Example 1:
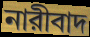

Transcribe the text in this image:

নারীবাদ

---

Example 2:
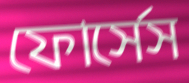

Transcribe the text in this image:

ফোর্সেস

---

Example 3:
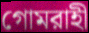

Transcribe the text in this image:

গোমরাহী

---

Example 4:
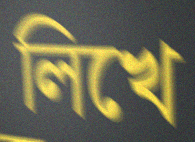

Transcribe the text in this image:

লিখে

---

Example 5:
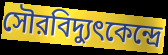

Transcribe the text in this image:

সৌরবিদ্যুৎকেন্দ্রে